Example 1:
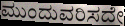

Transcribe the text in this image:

ಮುಂದುವರಿಸದೇ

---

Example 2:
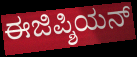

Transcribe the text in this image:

ಈಜಿಪ್ಶಿಯನ್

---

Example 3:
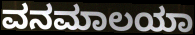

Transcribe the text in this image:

ವನಮಾಲಯಾ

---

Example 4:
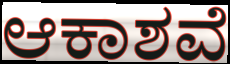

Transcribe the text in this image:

ಆಕಾಶವೆ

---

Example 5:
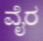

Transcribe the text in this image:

ವೈರ